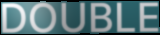
DOUBLE